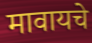
मावायचे